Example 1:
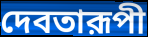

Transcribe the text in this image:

দেবতারূপী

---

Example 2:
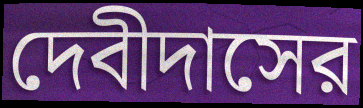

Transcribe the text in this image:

দেবীদাসের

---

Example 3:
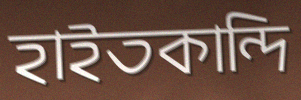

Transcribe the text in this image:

হাইতকান্দি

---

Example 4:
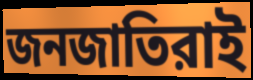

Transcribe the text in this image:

জনজাতিরাই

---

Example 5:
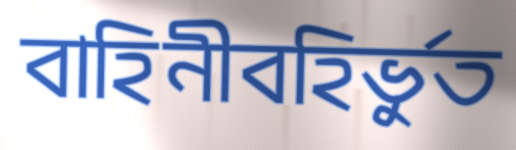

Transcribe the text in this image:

বাহিনীবহির্ভুত